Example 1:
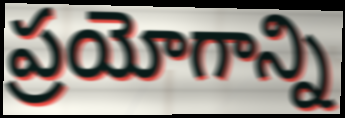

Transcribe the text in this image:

ప్రయోగాన్ని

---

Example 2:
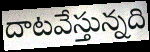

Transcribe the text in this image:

దాటవేస్తున్నది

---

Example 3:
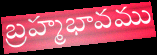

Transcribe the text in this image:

బ్రహ్మభావము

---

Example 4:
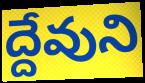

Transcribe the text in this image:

ద్దేవుని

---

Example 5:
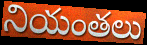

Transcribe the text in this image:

నియంతలు